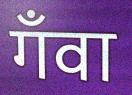
गँवा